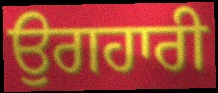
ਉਗਹਾਰੀ